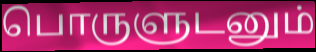
பொருளுடனும்